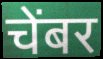
चेंबर